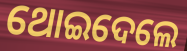
ଥୋଇଦେଲେ